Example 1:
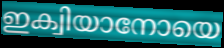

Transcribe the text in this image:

ഇക്വിയാനോയെ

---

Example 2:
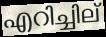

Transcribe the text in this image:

എറിച്ചില്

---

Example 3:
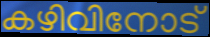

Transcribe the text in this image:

കഴിവിനോട്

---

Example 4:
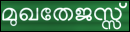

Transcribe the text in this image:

മുഖതേജസ്സ്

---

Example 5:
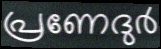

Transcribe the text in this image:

പ്രണേദുർ